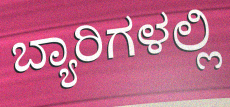
ಬ್ಯಾರಿಗಳಲ್ಲಿ